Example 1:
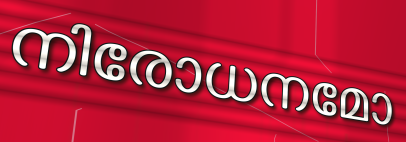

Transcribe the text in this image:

നിരോധനമോ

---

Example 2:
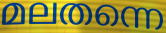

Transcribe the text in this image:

മലതന്നെ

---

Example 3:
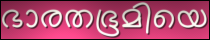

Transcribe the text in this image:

ഭാരതഭൂമിയെ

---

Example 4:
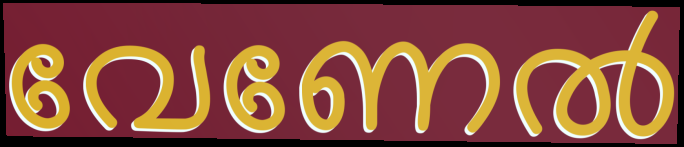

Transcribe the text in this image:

വേണേൽ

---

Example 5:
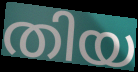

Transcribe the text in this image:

തിയ